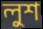
লুশ